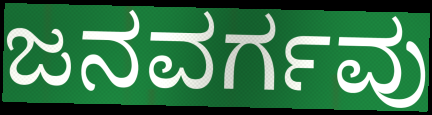
ಜನವರ್ಗವು